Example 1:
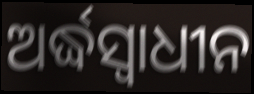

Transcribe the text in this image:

ଅର୍ଦ୍ଧସ୍ୱାଧୀନ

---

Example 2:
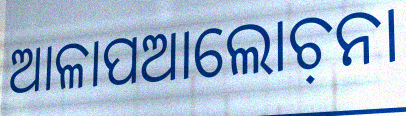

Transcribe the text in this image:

ଆଳାପଆଲୋଚ଼ନା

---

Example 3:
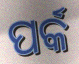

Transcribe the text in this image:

ପର୍କ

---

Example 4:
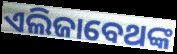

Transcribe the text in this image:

ଏଲିଜାବେଥଙ୍କ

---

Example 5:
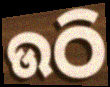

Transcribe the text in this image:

ଉଠି